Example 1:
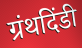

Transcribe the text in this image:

ग्रंथदिंडी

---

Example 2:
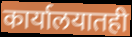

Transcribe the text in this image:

कार्यालयातही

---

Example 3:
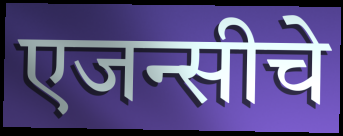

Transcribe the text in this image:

एजन्सीचे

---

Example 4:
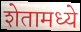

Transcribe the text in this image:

शेतामध्ये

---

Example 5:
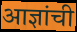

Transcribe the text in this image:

आज्ञांची